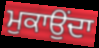
ਮੁਕਾਉਂਦਾ